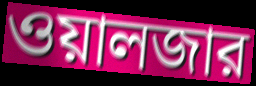
ওয়ালজার